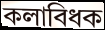
কলাবিধক